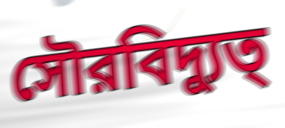
সৌরবিদ্যুত্